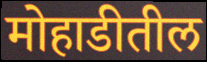
मोहाडीतील